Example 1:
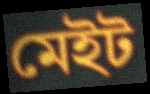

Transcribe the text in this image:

মেইট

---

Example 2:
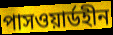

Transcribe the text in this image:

পাসওয়ার্ডহীন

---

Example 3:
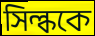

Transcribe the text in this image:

সিল্ককে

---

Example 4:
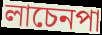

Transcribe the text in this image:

লাচেনপা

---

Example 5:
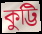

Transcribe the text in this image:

কুট্টি